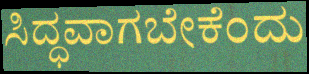
ಸಿದ್ಧವಾಗಬೇಕೆಂದು